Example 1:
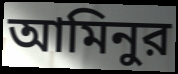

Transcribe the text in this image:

আমিনুর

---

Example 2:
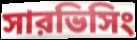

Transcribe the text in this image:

সারভিসিং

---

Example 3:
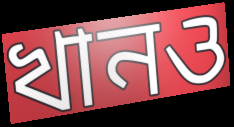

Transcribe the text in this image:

খানও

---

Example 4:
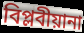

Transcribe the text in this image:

বিপ্লবীয়ানা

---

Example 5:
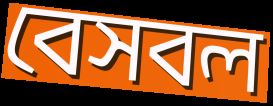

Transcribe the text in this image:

বেসবল